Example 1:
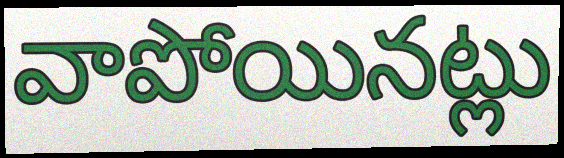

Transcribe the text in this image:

వాపోయినట్లు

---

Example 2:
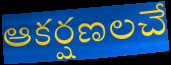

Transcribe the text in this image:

ఆకర్షణలచే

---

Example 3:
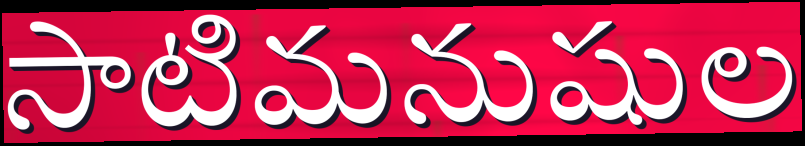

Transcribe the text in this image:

సాటిమనుషుల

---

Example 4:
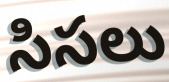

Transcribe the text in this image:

సిసలు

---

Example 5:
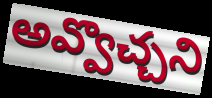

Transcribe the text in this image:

అవ్వొచ్చని